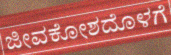
ಜೀವಕೋಶದೊಳಗೆ